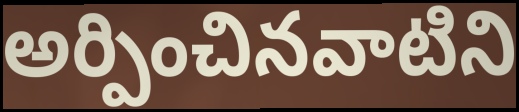
అర్పించినవాటిని